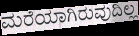
ಮರೆಯಾಗಿರುವುದಿಲ್ಲ